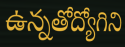
ఉన్నతోద్యోగిని